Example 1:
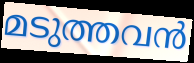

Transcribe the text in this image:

മടുത്തവൻ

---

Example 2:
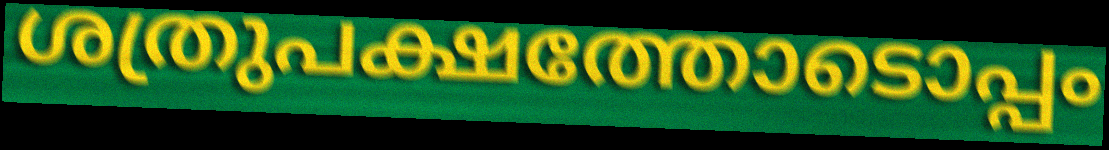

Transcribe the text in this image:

ശത്രുപക്ഷത്തോടൊപ്പം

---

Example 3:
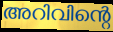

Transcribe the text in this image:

അറിവിന്റെ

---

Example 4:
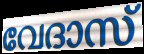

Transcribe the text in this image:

വേദാസ്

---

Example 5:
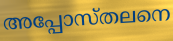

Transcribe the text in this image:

അപ്പോസ്തലനെ